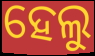
ହେଲୁ